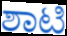
ಶಾಟಿ